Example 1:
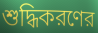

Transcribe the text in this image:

শুদ্ধিকরণের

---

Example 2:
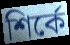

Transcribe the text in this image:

শির্কে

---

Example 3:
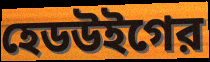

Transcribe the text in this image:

হেডউইগের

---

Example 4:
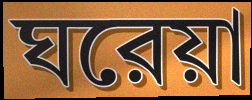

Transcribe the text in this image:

ঘরেয়া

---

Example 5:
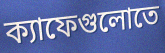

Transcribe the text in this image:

ক্যাফেগুলোতে